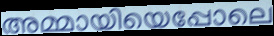
അമ്മായിയെപ്പോലെ